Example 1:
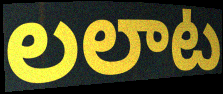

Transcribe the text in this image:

లలాట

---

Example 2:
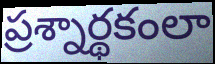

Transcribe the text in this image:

ప్రశ్నార్థకంలా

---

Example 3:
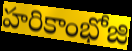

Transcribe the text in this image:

హరికాంభోజి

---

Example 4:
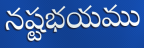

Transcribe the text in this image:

నష్టభయము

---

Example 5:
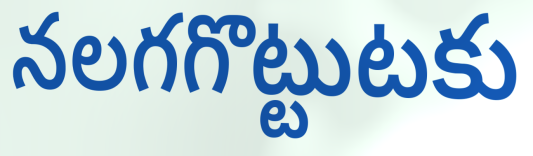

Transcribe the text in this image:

నలగగొట్టుటకు